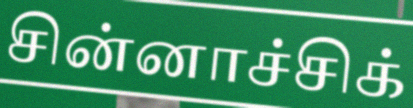
சின்னாச்சிக்